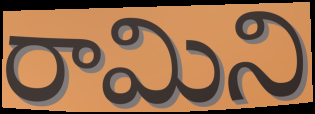
రామిని